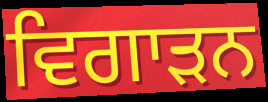
ਵਿਗਾੜਨ